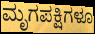
ಮೃಗಪಕ್ಷಿಗಳೂ